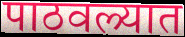
पाठवल्यात